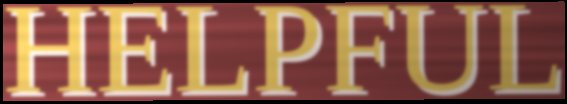
HELPFUL